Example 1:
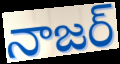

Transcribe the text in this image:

నాజర్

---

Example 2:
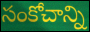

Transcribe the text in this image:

సంకోచాన్ని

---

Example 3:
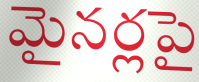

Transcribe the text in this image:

మైనర్లపై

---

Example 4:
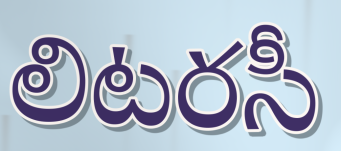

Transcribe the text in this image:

లిటరసీ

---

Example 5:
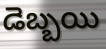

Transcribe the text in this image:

డెబ్బయి